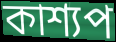
কাশ্যপ